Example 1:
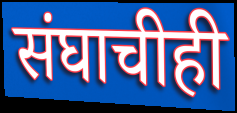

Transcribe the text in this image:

संघाचीही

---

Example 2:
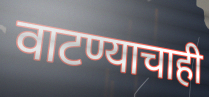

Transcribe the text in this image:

वाटण्याचाही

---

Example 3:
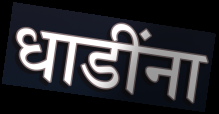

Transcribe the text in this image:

धाडींना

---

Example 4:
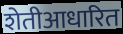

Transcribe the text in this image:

शेतीआधारित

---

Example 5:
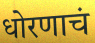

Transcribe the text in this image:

धोरणाचं